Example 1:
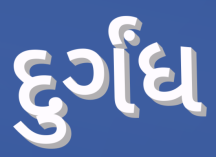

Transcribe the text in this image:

દુર્ગંધ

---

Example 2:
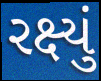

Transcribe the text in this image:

રક્ષ્યું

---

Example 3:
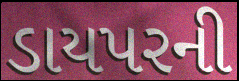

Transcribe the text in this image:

ડાયપરની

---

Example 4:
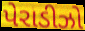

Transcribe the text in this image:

પેરાડીઝો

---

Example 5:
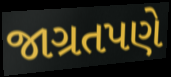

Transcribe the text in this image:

જાગ્રતપણે